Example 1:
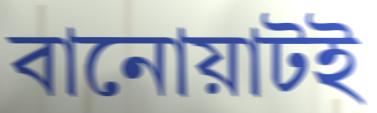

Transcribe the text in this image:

বানোয়াটই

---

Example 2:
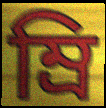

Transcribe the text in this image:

ম্রি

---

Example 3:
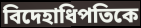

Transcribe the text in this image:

বিদেহাধিপতিকে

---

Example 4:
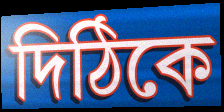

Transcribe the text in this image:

দিঠিকে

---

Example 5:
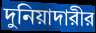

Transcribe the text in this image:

দুনিয়াদারীর